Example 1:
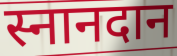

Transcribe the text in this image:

स्नानदान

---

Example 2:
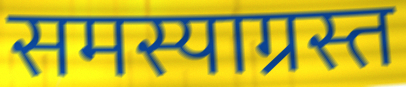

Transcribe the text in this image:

समस्याग्रस्त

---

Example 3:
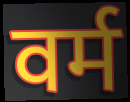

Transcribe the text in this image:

वर्म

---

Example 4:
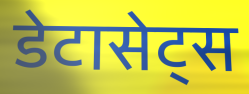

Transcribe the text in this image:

डेटासेट्स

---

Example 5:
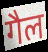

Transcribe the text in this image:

गैल